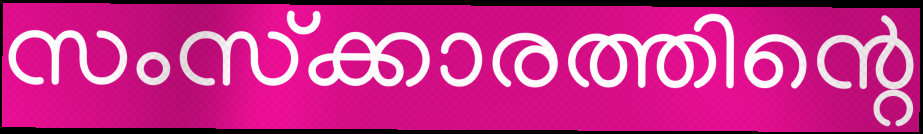
സംസ്‌ക്കാരത്തിന്റെ